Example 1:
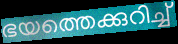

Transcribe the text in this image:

ഭയത്തെക്കുറിച്ച്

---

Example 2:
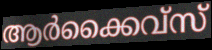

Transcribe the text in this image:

ആർക്കൈവ്സ്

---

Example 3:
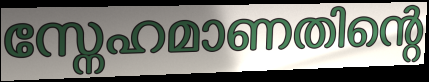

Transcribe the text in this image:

സ്നേഹമാണതിന്റെ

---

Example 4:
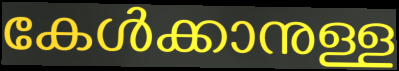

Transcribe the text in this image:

കേൾക്കാനുള്ള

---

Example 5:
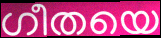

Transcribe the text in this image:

ഗീതയെ